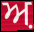
ਅ਼